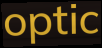
optic